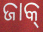
ଜାକ୍